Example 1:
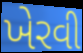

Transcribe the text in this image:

ખેરવી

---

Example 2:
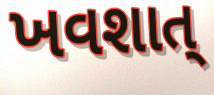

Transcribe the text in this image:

ખવશાત્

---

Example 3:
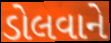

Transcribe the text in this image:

ડોલવાને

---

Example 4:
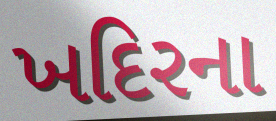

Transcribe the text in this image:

ખદિરના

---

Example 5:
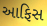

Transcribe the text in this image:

આફિસ